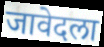
जावेदला